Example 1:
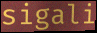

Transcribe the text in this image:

sigali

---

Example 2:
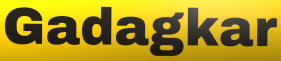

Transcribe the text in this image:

Gadagkar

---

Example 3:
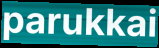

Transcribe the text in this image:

parukkai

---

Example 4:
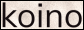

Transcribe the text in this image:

koino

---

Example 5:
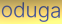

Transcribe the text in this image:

oduga